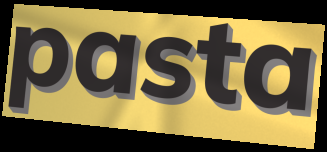
pasta